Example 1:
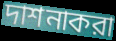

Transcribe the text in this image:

দাশনাকরা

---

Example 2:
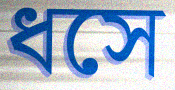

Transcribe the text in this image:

ধসে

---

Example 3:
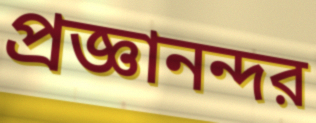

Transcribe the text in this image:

প্রজ্ঞানন্দর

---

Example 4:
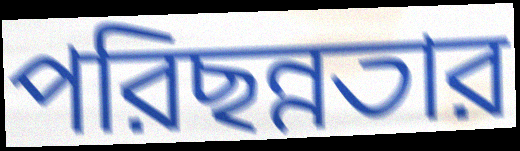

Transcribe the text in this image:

পরিছন্নতার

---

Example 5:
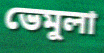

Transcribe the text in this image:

ভেমুলা